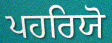
ਪਹਰਿਯੋ